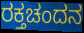
ರಕ್ತಚಂದನ